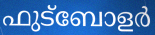
ഫുട്ബോളർ